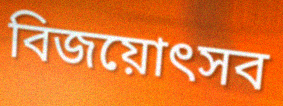
বিজয়োৎসব